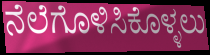
ನೆಲೆಗೊಳಿಸಿಕೊಳ್ಳಲು